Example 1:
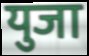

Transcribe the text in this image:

युजा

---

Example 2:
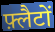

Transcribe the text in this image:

फ़्लैटों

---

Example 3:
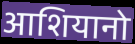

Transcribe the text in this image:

आशियानो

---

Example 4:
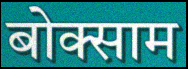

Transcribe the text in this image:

बोक्साम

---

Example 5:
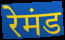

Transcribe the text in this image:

रेमंड